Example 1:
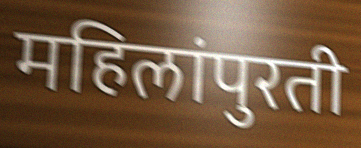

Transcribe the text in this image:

महिलांपुरती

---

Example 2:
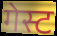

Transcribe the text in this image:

गेस्ट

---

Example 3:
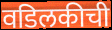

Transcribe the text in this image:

वडिलकीची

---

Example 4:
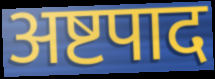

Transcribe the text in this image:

अष्टपाद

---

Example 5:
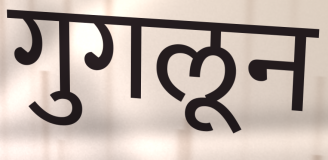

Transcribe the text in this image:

गुगलून